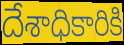
దేశాధికారికి